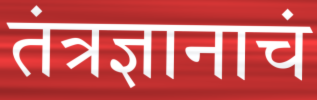
तंत्रज्ञानाचं